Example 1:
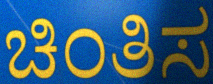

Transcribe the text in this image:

ಚಿಂತಿಸ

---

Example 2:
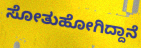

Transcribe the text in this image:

ಸೋತುಹೋಗಿದ್ದಾನೆ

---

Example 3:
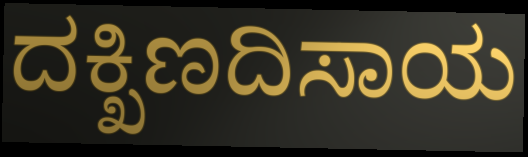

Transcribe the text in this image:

ದಕ್ಖಿಣದಿಸಾಯ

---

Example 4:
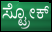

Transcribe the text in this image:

ಸ್ಟ್ರೋಕ್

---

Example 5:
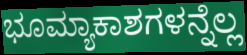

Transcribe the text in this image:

ಭೂಮ್ಯಾಕಾಶಗಳನ್ನೆಲ್ಲ